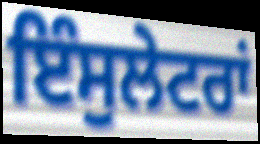
ਇੰਸੁਲੇਟਰਾਂ